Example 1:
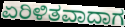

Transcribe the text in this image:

ಏರಿಳಿತವಾದಾಗ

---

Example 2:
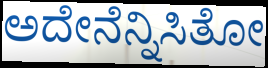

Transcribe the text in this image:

ಅದೇನೆನ್ನಿಸಿತೋ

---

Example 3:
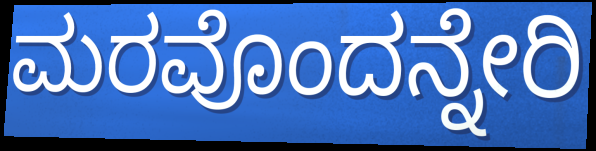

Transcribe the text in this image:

ಮರವೊಂದನ್ನೇರಿ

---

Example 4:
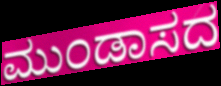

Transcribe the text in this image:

ಮುಂಡಾಸದ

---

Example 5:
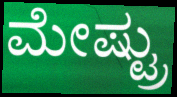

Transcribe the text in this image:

ಮೇಷ್ಟ್ರು